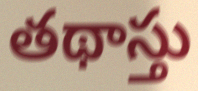
తథాస్తు